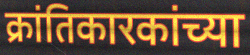
क्रांतिकारकांच्या